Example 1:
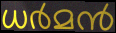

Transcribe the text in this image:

ധർമൻ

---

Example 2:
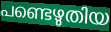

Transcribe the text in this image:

പണ്ടെഴുതിയ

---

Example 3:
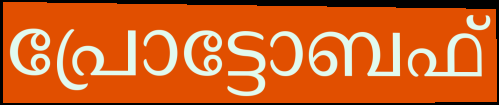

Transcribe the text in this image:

പ്രോട്ടോബഫ്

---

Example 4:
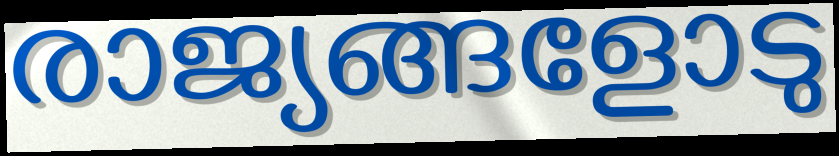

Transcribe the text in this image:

രാജ്യങ്ങളോടു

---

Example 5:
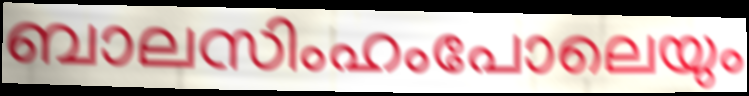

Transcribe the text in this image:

ബാലസിംഹംപോലെയും